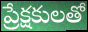
ప్రేక్షకులతో